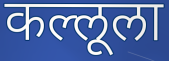
कल्लूला